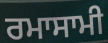
ਰਮਾਸਾਮੀ